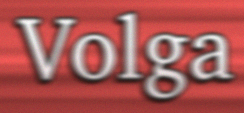
Volga